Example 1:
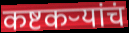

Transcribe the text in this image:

कष्टकऱ्यांचं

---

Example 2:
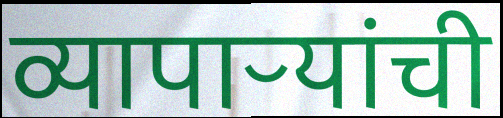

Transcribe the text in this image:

व्यापाऱ्यांची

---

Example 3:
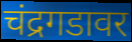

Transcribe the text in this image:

चंद्रगडावर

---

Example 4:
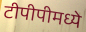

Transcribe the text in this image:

टीपीपीमध्ये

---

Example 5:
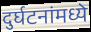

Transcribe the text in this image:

दुर्घटनांमध्ये